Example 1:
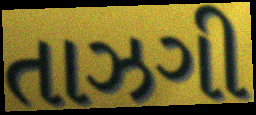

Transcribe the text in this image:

તાઝગી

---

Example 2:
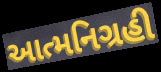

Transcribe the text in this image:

આત્મનિગ્રહી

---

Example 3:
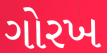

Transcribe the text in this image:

ગોરખ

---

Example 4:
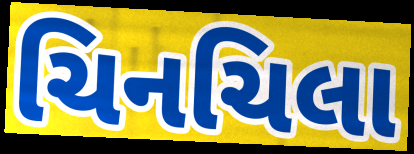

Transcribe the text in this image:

ચિનચિલા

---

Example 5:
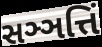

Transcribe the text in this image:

સઞ્ઞત્તિં